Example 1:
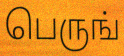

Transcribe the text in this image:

பெருங்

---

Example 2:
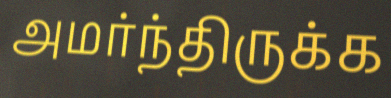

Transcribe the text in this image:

அமர்ந்திருக்க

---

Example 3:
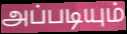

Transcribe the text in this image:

அப்படியும்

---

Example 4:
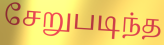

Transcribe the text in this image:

சேறுபடிந்த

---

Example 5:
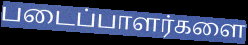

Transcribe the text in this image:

படைப்பாளர்களை